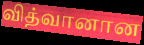
வித்வானான